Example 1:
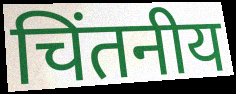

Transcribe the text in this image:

चिंतनीय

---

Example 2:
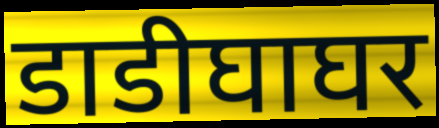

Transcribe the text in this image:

डाडीघाघर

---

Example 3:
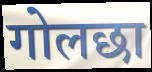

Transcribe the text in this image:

गोलछा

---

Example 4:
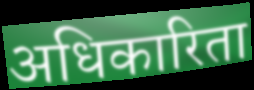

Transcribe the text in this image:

अधिकारिता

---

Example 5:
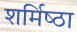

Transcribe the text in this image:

शर्मिष्‍ठा